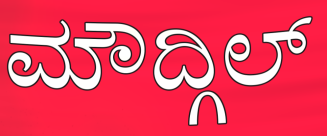
ಮೌದ್ಗಿಲ್